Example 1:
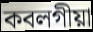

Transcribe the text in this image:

কবলগীয়া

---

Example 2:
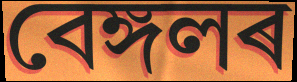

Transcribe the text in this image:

বেঙ্গলৰ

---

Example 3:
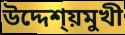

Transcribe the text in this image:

উদ্দেশ্য়মুখী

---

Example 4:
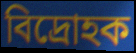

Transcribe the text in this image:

বিদ্ৰোহক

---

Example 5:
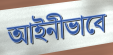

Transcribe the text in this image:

আইনীভাবে